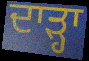
ਦਾੜ੍ਹਾ